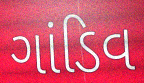
ગાંડિવ